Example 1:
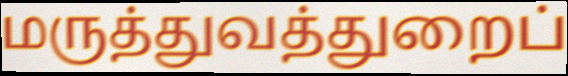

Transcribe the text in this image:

மருத்துவத்துறைப்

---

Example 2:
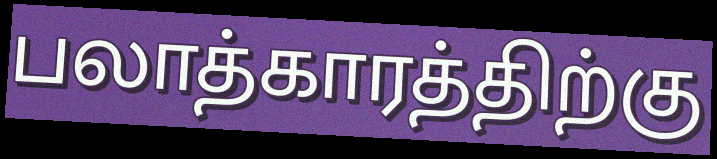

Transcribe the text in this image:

பலாத்காரத்திற்கு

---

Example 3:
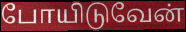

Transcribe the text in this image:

போயிடுவேன்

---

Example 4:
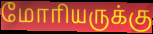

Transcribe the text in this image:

மோரியருக்கு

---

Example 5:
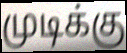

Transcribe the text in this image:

முடிக்கு